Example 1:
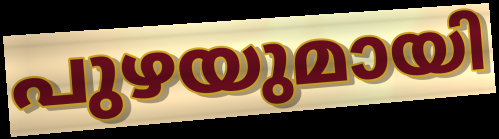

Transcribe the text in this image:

പുഴയുമായി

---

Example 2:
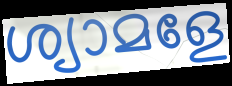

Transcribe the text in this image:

ശ്യാമളേ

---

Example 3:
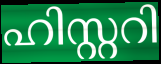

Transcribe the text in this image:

ഹിസ്റ്ററി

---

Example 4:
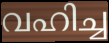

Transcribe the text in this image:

വഹിച്ച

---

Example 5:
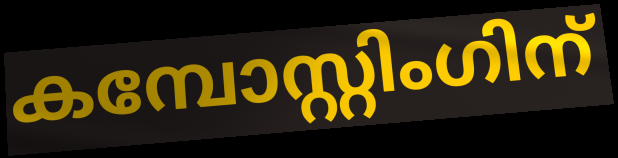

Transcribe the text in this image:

കമ്പോസ്റ്റിംഗിന്